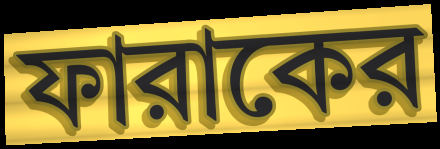
ফারাকের